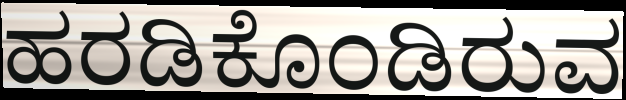
ಹರಡಿಕೊಂಡಿರುವ